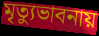
মৃত্যুভাবনায়